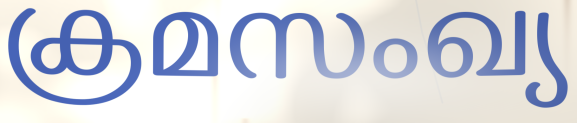
ക്രമസംഖ്യ